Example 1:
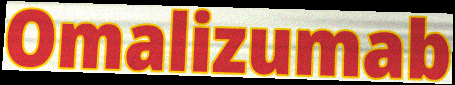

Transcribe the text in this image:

Omalizumab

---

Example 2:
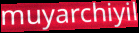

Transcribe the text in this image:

muyarchiyil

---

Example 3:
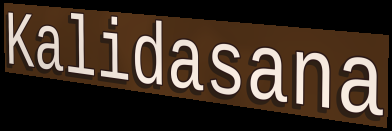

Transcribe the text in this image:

Kalidasana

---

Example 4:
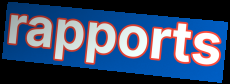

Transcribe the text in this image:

rapports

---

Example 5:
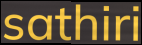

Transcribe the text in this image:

sathiri